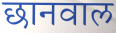
छानवाल